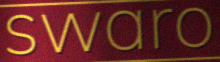
swaro